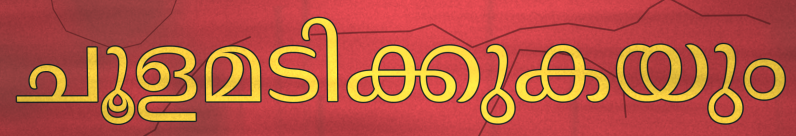
ചൂളമടിക്കുകയും